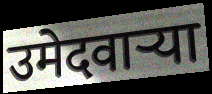
उमेदवार्‍या